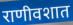
राणीवशात